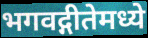
भगवद्गीतेमध्ये